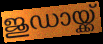
ജുഡായ്ക്ക്